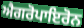
ਐਗਰੋਪਾਇਰੋਨ